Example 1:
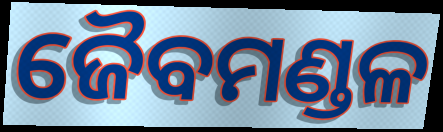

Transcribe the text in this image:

ଜୈବମଣ୍ଡଳ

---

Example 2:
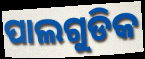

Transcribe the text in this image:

ପାଲଗୁଡିକ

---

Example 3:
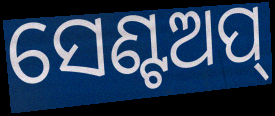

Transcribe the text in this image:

ସେଣ୍ଟଅପ୍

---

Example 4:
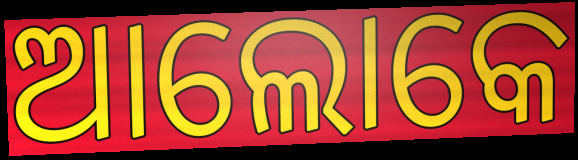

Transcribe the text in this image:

ଆଲୋକେ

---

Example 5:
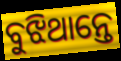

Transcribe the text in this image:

ବୁଝିଥାନ୍ତେ